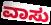
ವಾಸು